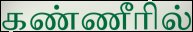
கண்ணீரில்